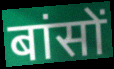
बांसों